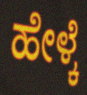
ಹೇಳ್ಕೆ